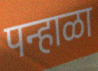
पन्हाळा